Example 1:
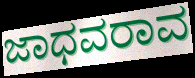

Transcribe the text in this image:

ಜಾಧವರಾವ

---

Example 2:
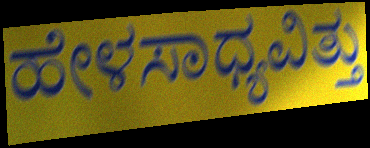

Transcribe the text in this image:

ಹೇಳಸಾಧ್ಯವಿತ್ತು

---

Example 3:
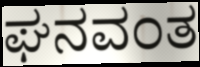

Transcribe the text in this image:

ಘನವಂತ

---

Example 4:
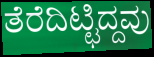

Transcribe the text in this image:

ತೆರೆದಿಟ್ಟಿದ್ದವು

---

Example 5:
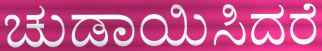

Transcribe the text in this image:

ಚುಡಾಯಿಸಿದರೆ